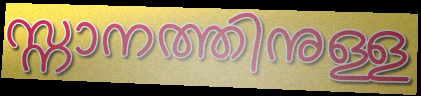
സ്നാനത്തിനുള്ള